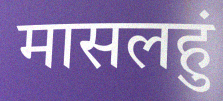
मासलहुं